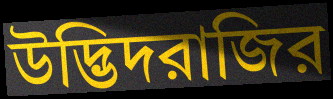
উদ্ভিদরাজির